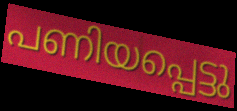
പണിയപ്പെട്ടു